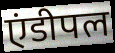
एंडीपल